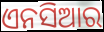
ଏନସିଆର